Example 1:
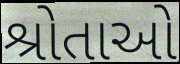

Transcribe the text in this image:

શ્રોતાઓ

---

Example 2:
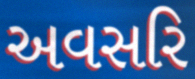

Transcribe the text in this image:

અવસરિ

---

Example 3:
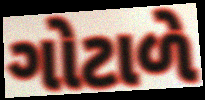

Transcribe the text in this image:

ગોટાળે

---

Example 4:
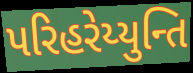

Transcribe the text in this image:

પરિહરેય્યુન્તિ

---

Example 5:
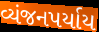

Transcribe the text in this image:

વ્યંજનપર્યાય